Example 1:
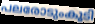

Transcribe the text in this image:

പലരോടുംകൂടി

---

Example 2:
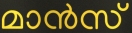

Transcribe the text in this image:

മാൻസ്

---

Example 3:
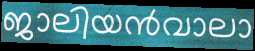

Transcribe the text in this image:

ജാലിയൻവാലാ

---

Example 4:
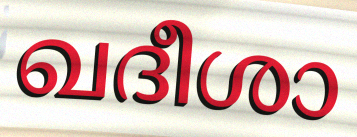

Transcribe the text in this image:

ഖദീശാ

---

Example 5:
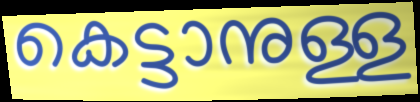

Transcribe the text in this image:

കെട്ടാനുള്ള